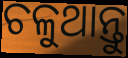
ଚଳୁଥାନ୍ତୁ